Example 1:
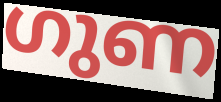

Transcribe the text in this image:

ഗുണ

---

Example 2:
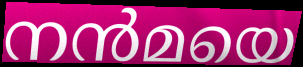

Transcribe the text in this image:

നൻമയെ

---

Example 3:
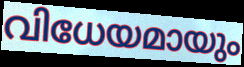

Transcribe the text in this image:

വിധേയമായും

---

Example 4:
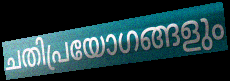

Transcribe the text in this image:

ചതിപ്രയോഗങ്ങളും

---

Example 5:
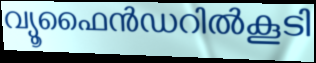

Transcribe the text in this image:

വ്യൂഫൈൻഡറിൽകൂടി